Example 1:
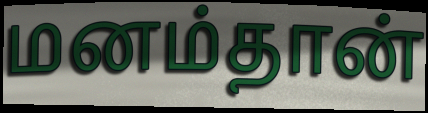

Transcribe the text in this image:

மனம்தான்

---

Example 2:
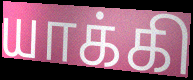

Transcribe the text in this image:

யாக்கி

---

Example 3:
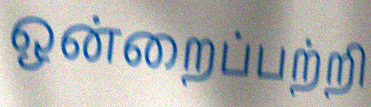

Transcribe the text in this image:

ஒன்றைப்பற்றி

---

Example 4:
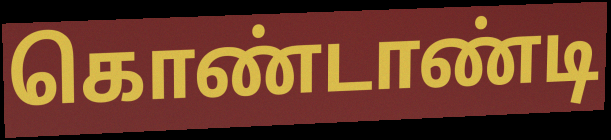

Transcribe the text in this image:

கொண்டாண்டி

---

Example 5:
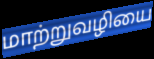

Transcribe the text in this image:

மாற்றுவழியை